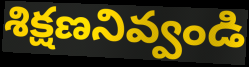
శిక్షణనివ్వండి